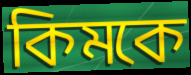
কিমকে